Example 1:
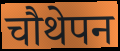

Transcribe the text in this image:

चौथेपन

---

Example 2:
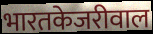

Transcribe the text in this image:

भारतकेजरीवाल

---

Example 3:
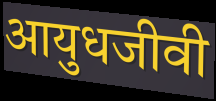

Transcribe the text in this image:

आयुधजीवी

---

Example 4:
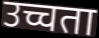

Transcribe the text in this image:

उच्चता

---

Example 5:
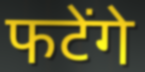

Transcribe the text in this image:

फटेंगे